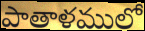
పాతాళములో